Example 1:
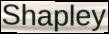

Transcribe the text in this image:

Shapley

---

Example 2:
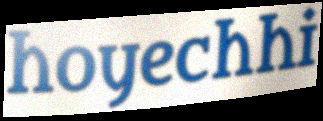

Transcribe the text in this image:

hoyechhi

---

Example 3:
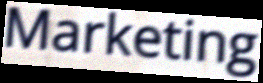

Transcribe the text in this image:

Marketing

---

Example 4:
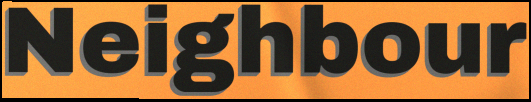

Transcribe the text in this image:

Neighbour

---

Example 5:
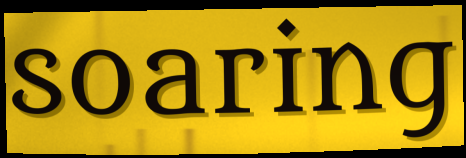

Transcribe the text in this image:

soaring